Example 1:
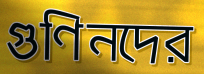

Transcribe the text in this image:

গুণিনদের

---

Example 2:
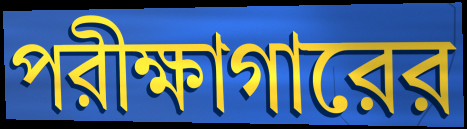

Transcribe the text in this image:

পরীক্ষাগারের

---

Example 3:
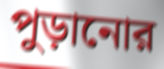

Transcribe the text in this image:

পুড়ানোর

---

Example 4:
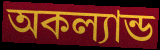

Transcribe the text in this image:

অকল্যান্ড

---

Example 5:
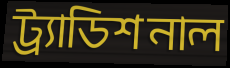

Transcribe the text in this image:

ট্র্যাডিশনাল